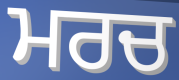
ਮਰਚ